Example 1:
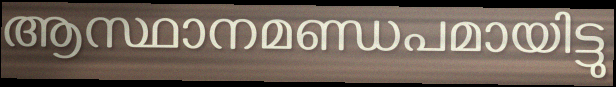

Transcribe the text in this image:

ആസ്ഥാനമണ്ഡപമായിട്ടു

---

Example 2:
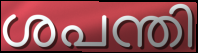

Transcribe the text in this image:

ശപന്തി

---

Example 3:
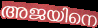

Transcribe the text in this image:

അജയിനെ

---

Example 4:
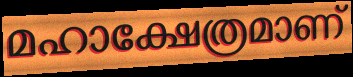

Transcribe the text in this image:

മഹാക്ഷേത്രമാണ്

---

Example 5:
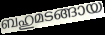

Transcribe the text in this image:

ബഹുമടങ്ങായ